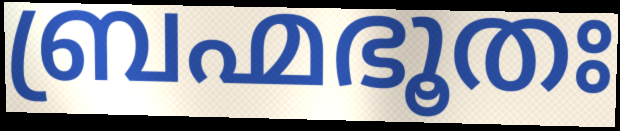
ബ്രഹ്മഭൂതഃ